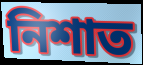
নিশাত